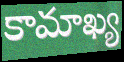
కామాఖ్య